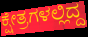
ಕ್ಷೇತ್ರಗಳಲ್ಲಿದ್ದ